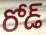
రోడ్